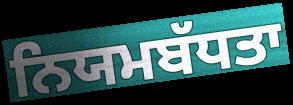
ਨਿਯਮਬੱਧਤਾ